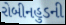
રોબીનહુડની